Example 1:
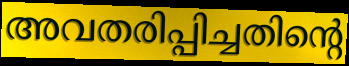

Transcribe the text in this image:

അവതരിപ്പിച്ചതിന്റെ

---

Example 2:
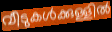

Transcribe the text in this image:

വീടുകൾക്കുള്ളിൽ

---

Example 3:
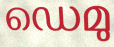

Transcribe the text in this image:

ഡെമു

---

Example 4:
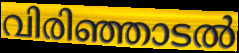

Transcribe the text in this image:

വിരിഞ്ഞാടൽ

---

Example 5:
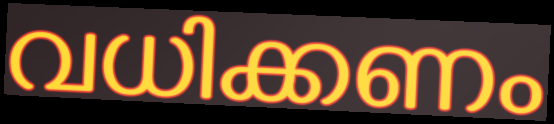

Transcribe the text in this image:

വധിക്കണം